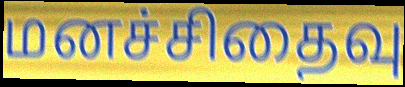
மனச்சிதைவு